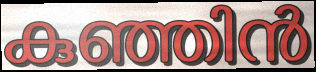
കുഞ്ഞിൻ